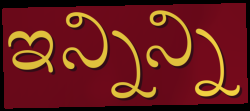
ఇన్నిన్ని